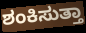
ಶಂಕಿಸುತ್ತಾ